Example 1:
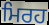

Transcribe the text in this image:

ਮਿਰਹ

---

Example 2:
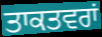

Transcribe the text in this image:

ਤਾਕਤਵਰਾਂ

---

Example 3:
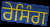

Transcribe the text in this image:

ਰੇਸਿੰਗ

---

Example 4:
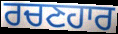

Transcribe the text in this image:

ਰਚਣਹਾਰ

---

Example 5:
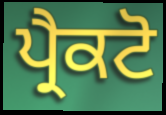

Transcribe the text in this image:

ਪ੍ਰੈਕਟੋ